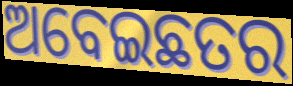
ଅବେଇଛତର